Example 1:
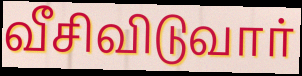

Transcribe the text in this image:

வீசிவிடுவார்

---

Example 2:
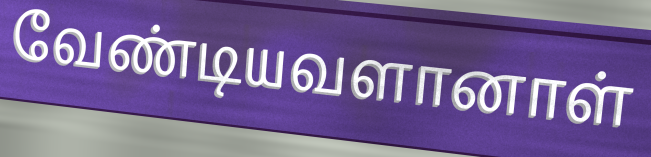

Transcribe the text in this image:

வேண்டியவளானாள்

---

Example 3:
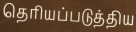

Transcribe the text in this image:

தெரியப்படுத்திய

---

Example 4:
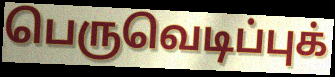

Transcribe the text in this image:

பெருவெடிப்புக்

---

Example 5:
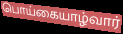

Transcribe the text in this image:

பொய்கையாழ்வார்